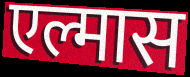
एल्मास